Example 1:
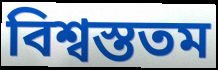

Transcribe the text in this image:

বিশ্বস্ততম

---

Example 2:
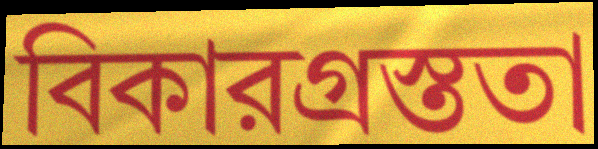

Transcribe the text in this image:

বিকারগ্রস্ততা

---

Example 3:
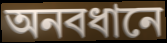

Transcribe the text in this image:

অনবধানে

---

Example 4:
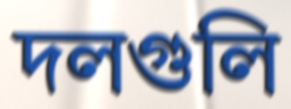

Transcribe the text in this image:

দলগুলি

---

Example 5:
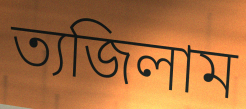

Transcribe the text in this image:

ত্যজিলাম